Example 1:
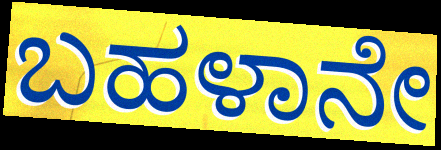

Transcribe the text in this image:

ಬಹಳಾನೇ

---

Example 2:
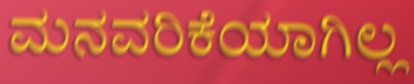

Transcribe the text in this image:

ಮನವರಿಕೆಯಾಗಿಲ್ಲ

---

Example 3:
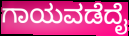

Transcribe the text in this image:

ಗಾಯವಡೆದೈ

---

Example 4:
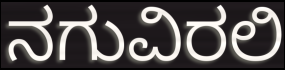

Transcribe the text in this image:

ನಗುವಿರಲಿ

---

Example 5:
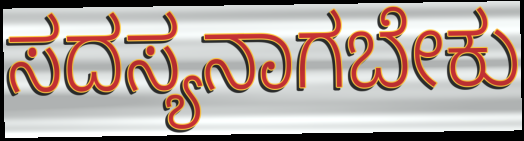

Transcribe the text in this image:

ಸದಸ್ಯನಾಗಬೇಕು